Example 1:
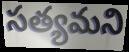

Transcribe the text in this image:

సత్యమని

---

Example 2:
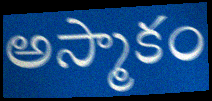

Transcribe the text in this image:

అస్మాకం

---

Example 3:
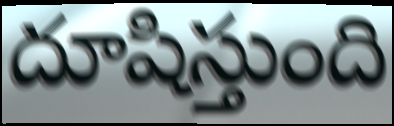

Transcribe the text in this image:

దూషిస్తుంది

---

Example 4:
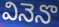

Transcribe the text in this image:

వినెనొ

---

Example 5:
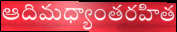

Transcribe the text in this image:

ఆదిమధ్యాంతరహిత